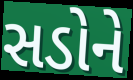
સડોને